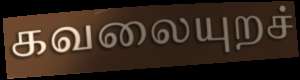
கவலையுறச்